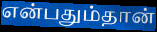
என்பதும்தான்